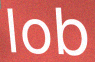
Iob